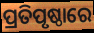
ପ୍ରତିପୃଷ୍ଠାରେ